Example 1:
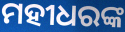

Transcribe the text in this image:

ମହୀଧରଙ୍କ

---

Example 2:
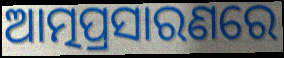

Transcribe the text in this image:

ଆତ୍ମପ୍ରସାରଣରେ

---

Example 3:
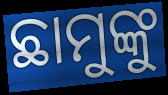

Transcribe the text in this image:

ଛାମୁଙ୍କୁ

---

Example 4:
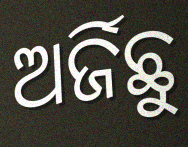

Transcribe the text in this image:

ଅର୍ଜିଛୁ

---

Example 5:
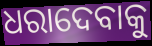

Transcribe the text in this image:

ଧରାଦେବାକୁ